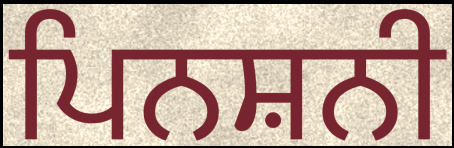
ਪਿਨਸ਼ਨੀ